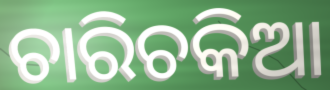
ଚାରିଚକିଆ